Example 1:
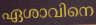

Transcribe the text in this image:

ഏശാവിനെ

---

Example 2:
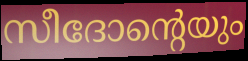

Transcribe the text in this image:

സീദോന്റെയും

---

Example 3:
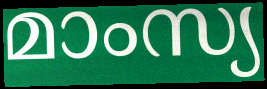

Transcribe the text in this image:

മാംസ്യ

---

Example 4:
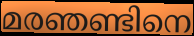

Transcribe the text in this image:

മരഞണ്ടിനെ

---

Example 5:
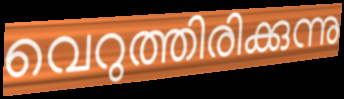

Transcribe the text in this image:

വെറുത്തിരിക്കുന്നു